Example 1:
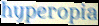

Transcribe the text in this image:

hyperopia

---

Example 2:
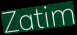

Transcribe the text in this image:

Zatim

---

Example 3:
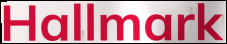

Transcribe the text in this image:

Hallmark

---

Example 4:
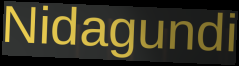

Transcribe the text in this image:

Nidagundi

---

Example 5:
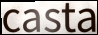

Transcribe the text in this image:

casta